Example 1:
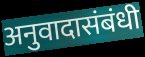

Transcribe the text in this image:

अनुवादासंबंधी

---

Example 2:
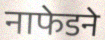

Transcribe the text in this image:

नाफेडने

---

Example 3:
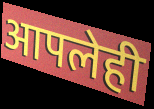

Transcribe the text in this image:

आपलेही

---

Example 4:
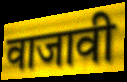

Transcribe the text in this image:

वाजावी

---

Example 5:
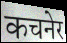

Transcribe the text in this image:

कचनेर